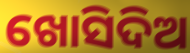
ଖୋସିଦିଅ